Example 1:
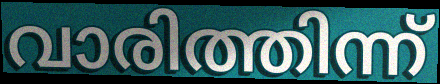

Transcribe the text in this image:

വാരിത്തിന്ന്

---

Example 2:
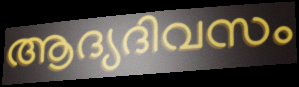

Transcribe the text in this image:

ആദ്യദിവസം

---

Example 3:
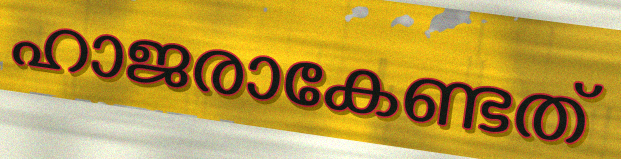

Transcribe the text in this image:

ഹാജരാകേണ്ടത്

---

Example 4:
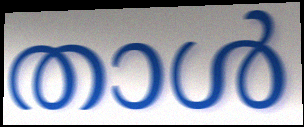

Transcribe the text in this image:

താൾ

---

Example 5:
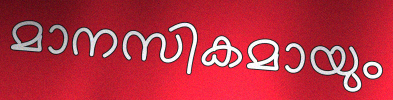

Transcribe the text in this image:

മാനസികമായും